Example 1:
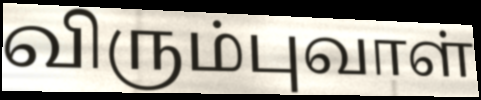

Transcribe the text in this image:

விரும்புவாள்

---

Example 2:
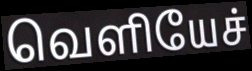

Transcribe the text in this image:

வெளியேச்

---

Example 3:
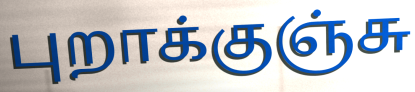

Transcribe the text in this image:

புறாக்குஞ்சு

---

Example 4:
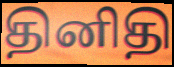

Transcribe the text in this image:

தினிதி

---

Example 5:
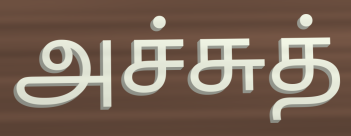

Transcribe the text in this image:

அச்சுத்